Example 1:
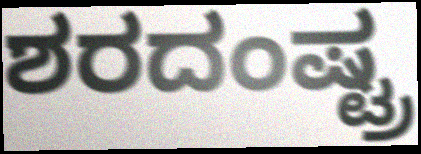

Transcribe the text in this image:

ಶರದಂಷ್ಟ್ರ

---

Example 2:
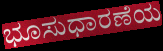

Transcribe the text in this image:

ಭೂಸುಧಾರಣೆಯ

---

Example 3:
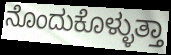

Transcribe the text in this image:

ನೊಂದುಕೊಳ್ಳುತ್ತಾ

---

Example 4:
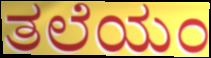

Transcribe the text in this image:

ತಲೆಯಂ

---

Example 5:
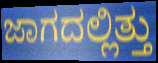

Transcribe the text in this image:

ಜಾಗದಲ್ಲಿತ್ತು